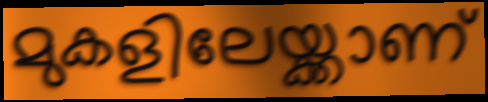
മുകളിലേയ്ക്കാണ്